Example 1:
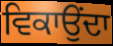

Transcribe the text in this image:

ਵਿਕਾਉੰਦਾ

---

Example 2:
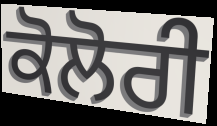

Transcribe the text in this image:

ਕੋਲੋਰੀ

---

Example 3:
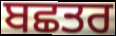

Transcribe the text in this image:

ਬਛਤਰ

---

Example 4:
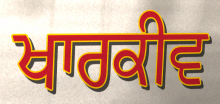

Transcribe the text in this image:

ਖਾਰਕੀਵ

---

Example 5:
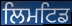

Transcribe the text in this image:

ਲਿਮਟਿਡ